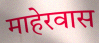
माहेरवास